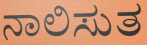
ನಾಲಿಸುತ